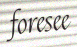
foresee